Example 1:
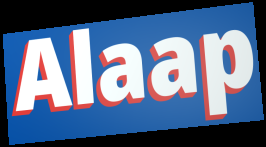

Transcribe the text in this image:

Alaap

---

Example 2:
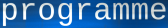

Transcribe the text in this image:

programme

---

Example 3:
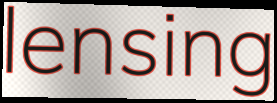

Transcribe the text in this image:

lensing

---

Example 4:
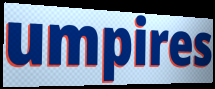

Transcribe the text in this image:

umpires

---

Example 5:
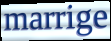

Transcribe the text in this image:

marrige